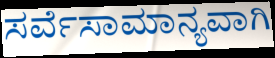
ಸರ್ವೆಸಾಮಾನ್ಯವಾಗಿ